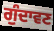
ਗੁੰਦਾਵਣ